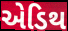
એડિથ